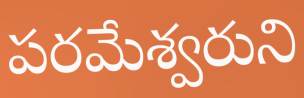
పరమేశ్వరుని